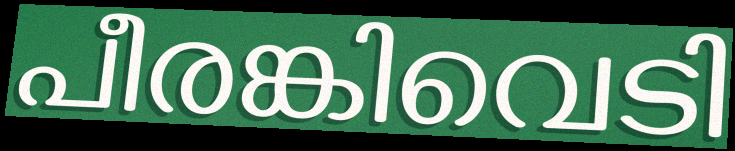
പീരങ്കിവെടി